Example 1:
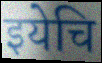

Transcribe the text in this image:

इयेचि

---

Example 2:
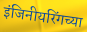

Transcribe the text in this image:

इंजिनीयरिंगच्या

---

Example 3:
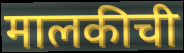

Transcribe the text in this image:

मालकीची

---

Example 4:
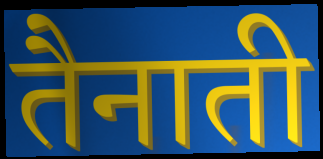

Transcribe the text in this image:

तैनाती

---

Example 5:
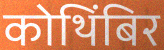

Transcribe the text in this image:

कोथिंबिर